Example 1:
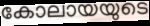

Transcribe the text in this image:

കോലായയുടെ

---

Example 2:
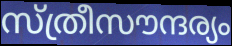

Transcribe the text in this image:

സ്ത്രീസൗന്ദര്യം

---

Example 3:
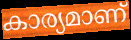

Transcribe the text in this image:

കാര്യമാണ്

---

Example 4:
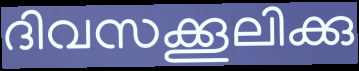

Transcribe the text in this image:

ദിവസക്കൂലിക്കു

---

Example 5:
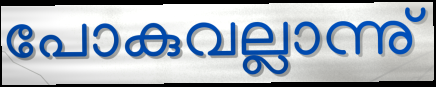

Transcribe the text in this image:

പോകുവല്ലാന്നു്